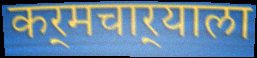
कर्मचार्याला